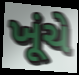
ખૂંચે